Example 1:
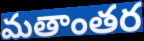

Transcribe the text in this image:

మతాంతర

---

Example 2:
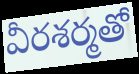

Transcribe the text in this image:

వీరశర్మతో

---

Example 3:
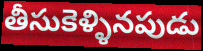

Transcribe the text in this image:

తీసుకెళ్ళినపుడు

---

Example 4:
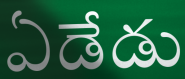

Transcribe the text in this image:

ఏడేడు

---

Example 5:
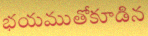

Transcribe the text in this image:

భయముతోకూడిన